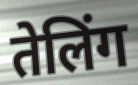
तेलिंग